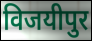
विजयीपुर